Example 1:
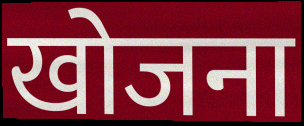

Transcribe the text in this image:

खोजना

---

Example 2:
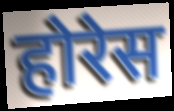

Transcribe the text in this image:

होरेस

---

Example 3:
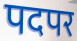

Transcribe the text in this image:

पदपर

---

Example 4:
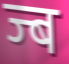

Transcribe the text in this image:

ज्ब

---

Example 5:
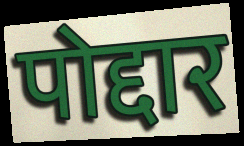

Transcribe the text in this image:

पोद्दार